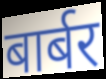
बार्बर